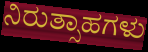
ನಿರುತ್ಸಾಹಗಳು